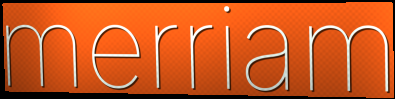
merriam